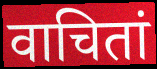
वाचितां